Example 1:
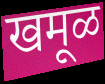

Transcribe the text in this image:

खमूळ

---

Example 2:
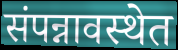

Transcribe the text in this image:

संपन्नावस्थेत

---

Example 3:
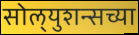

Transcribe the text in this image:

सोल्युशन्सच्या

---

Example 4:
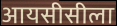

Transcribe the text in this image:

आयसीसीला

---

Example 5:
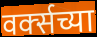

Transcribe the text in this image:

वर्क्‍सच्या